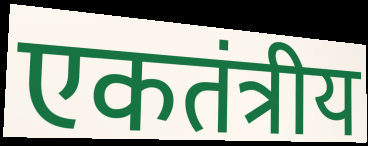
एकतंत्रीय